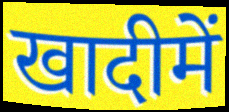
खादीमें